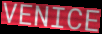
VENICE